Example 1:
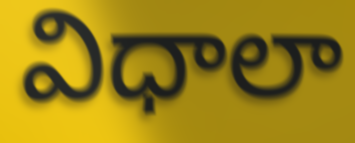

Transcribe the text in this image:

విధాలా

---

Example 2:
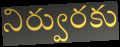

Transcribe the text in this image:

నిర్వురకు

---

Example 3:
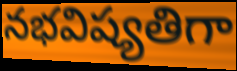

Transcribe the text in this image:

నభవిష్యతిగా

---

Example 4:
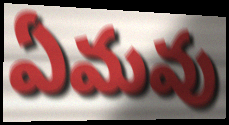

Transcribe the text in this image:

ఏమవు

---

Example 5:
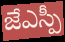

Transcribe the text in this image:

జేఎస్పీ